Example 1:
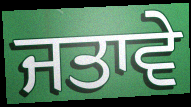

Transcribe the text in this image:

ਜਤਾਵੇ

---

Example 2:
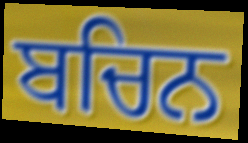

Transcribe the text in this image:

ਬਚਿਨ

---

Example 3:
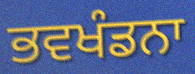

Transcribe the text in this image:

ਭਵਖੰਡਨਾ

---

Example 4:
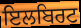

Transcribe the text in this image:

ਇਲਬਿਰਟ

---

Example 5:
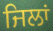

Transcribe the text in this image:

ਜਿਲਾਂ